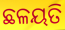
ଛଳୟତି